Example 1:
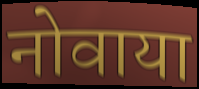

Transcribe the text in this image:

नोवाया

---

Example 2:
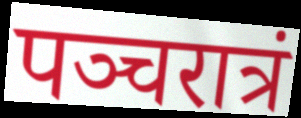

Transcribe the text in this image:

पञ्चरात्रं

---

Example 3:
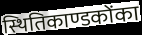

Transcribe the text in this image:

स्थितिकाण्डकोंका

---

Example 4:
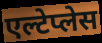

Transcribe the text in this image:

एल्टेप्लेस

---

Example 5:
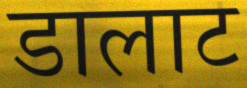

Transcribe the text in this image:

डालाट